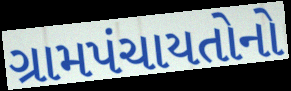
ગ્રામપંચાયતોનો